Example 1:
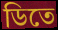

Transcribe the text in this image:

ডিতে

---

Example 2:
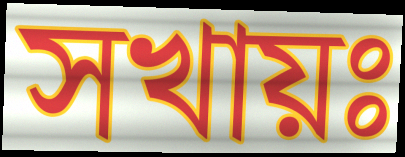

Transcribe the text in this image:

সখায়ঃ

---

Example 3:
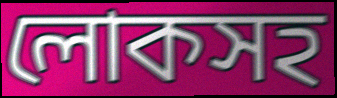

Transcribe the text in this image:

লোকসহ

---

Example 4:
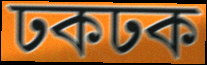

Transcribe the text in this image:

ঢকঢক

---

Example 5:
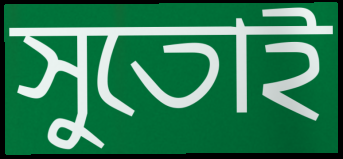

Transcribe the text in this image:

সুতোই